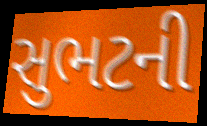
સુભટની